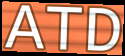
ATD